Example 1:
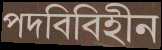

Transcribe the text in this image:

পদবিবিহীন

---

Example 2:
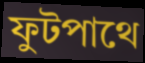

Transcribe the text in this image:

ফুটপাথে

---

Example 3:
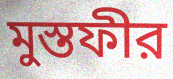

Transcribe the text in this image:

মুস্তফীর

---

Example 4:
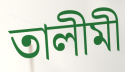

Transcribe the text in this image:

তালীমী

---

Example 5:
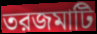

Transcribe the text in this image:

তরজমাটি